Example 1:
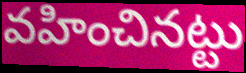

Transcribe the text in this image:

వహించినట్టు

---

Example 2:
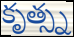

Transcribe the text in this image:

కృత్స్న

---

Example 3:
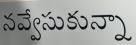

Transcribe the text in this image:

నవ్వేసుకున్నా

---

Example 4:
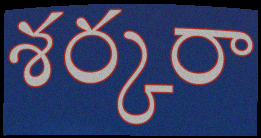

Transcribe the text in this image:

శర్కరా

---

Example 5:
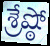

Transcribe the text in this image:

శ్రేష్ఠో